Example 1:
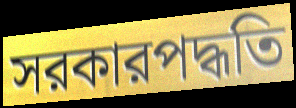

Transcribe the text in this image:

সরকারপদ্ধতি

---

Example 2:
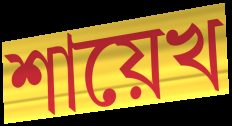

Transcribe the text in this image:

শায়েখ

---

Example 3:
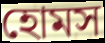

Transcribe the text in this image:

হোমস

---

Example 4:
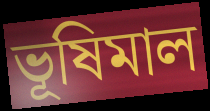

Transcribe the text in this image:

ভূষিমাল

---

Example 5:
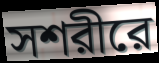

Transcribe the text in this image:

সশরীরে